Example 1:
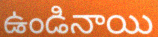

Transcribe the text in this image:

ఉండినాయి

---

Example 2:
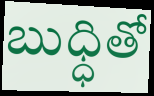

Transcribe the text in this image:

బుధ్ధితో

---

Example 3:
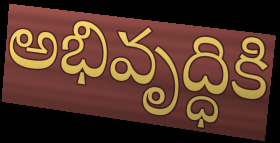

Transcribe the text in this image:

అభివృద్ధికి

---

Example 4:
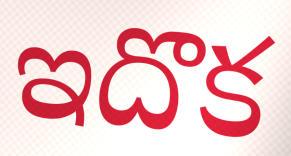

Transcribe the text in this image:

ఇదొక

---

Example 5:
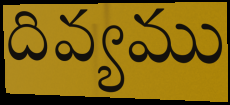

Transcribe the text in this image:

దివ్యము